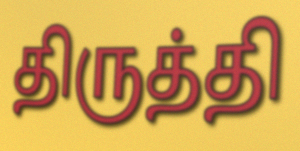
திருத்தி